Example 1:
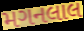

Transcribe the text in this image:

મગનલાલ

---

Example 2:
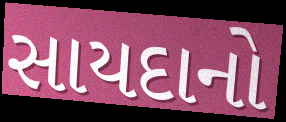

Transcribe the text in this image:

સાયદાનો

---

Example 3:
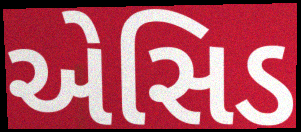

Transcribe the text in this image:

એસિડ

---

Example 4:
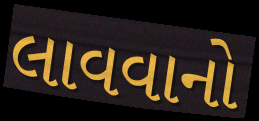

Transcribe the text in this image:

લાવવાનો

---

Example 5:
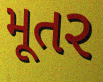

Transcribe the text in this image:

મૂતર